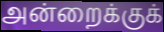
அன்றைக்குக்